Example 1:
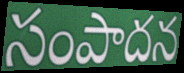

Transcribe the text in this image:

సంపాదన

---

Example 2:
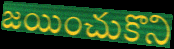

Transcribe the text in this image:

జయించుకొని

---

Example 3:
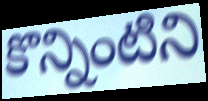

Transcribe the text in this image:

కొన్నింటిని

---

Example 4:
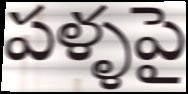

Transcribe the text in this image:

పళ్ళపై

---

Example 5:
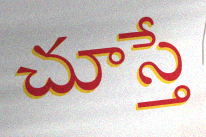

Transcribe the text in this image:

చూస్తే